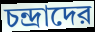
চন্দ্রাদের